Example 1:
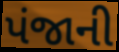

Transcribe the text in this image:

પંજાની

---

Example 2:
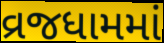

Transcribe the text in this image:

વ્રજધામમાં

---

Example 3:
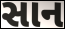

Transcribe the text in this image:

સાન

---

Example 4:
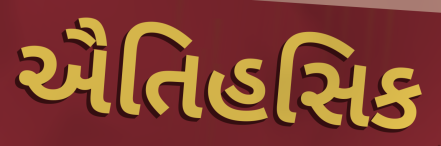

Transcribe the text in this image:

ઐતિહસિક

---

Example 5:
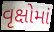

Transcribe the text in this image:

વૃક્ષોમાં